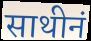
साथीनं